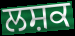
ਲਸ਼ਕ